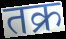
तक्र